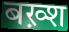
बख़्श